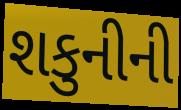
શકુનીની